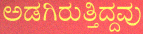
ಅಡಗಿರುತ್ತಿದ್ದವು